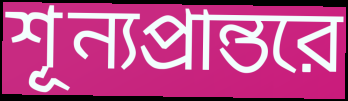
শূন্যপ্রান্তরে